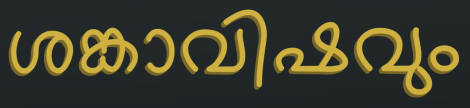
ശങ്കാവിഷവും